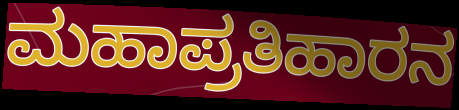
ಮಹಾಪ್ರತಿಹಾರನ